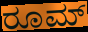
ರೂಮ್